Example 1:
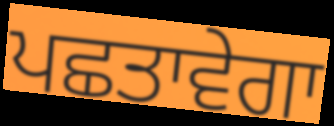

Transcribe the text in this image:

ਪਛਤਾਵੇਗਾ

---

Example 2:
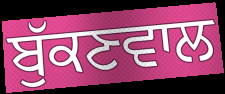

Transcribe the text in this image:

ਬੁੱਕਣਵਾਲ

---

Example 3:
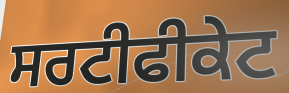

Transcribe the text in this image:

ਸਰਟੀਫੀਕੇਟ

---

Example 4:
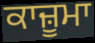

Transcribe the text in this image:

ਕਾਜ਼ੂਮਾ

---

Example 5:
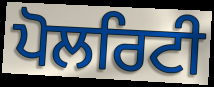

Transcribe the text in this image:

ਪੋਲਰਿਟੀ